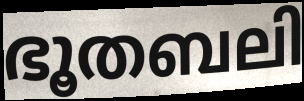
ഭൂതബലി